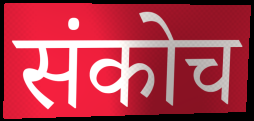
संकोच